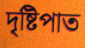
দৃষ্টিপাত